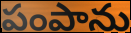
పంపాను